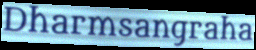
Dharmsangraha